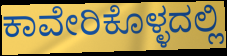
ಕಾವೇರಿಕೊಳ್ಳದಲ್ಲಿ